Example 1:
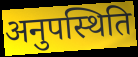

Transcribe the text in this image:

अनुपस्थिति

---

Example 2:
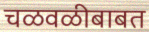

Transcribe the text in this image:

चळवळीबाबत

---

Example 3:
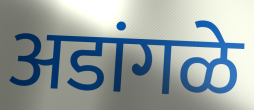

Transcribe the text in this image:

अडांगळे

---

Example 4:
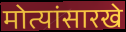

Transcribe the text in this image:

मोत्यांसारखे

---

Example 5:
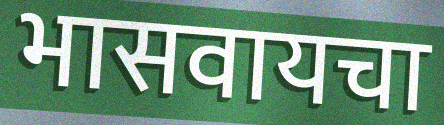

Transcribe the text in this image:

भासवायचा